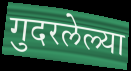
गुदरलेल्या